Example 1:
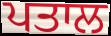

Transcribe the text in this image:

ਪਤਾਲ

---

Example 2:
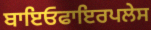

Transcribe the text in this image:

ਬਾਇਓਫਾਇਰਪਲੇਸ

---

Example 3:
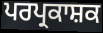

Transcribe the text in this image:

ਪਰਪ੍ਰਕਾਸ਼ਕ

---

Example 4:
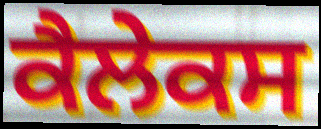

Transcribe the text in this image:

ਕੈਲੇਕਸ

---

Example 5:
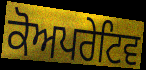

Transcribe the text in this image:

ਕੋਅਪਰੇਟਿਵ